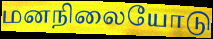
மனநிலையோடு